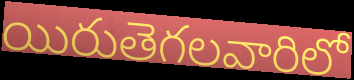
యిరుతెగలవారిలో